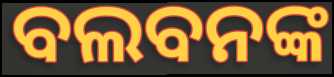
ବଲବନଙ୍କ